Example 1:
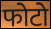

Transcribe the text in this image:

फोटो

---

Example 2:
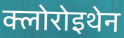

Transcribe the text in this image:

क्लोरोइथेन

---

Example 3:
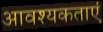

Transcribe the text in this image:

आवश्यकताएं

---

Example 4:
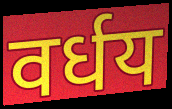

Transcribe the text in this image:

वर्धय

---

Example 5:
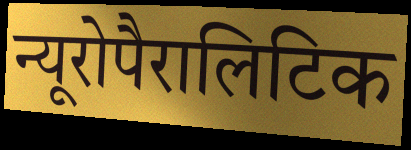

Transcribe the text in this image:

न्यूरोपैरालिटिक